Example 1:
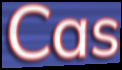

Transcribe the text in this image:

Cas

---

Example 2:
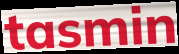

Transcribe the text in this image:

tasmin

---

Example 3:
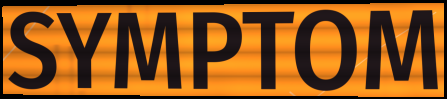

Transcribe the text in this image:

SYMPTOM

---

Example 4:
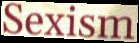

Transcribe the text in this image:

Sexism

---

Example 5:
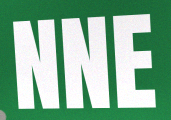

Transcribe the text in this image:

NNE